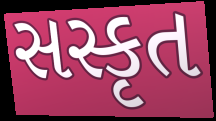
સસ્કૃત